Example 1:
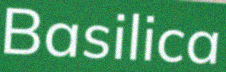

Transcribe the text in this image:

Basilica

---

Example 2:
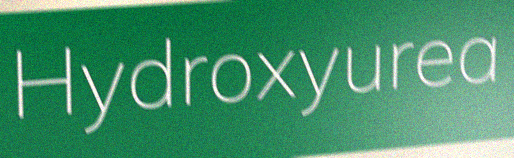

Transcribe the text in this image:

Hydroxyurea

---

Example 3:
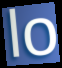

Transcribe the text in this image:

lo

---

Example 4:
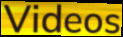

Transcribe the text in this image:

Videos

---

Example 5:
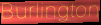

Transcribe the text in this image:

Burlington